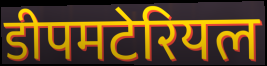
डीपमटेरियल